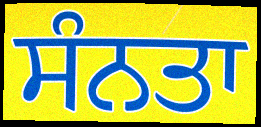
ਸੰਨਤਾ